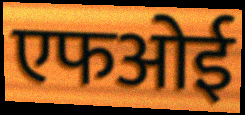
एफओई